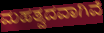
ಮಹತ್ವದವಾಗಿವೆ